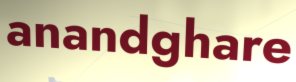
anandghare